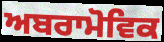
ਅਬਰਾਮੋਵਿਕ